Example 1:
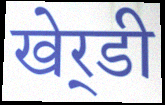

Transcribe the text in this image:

खेर्डी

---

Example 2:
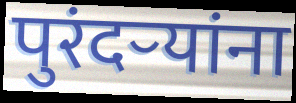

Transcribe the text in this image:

पुरंदऱ्यांना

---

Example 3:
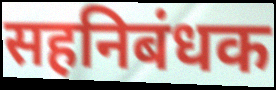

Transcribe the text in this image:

सहनिबंधक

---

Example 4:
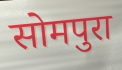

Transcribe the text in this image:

सोमपुरा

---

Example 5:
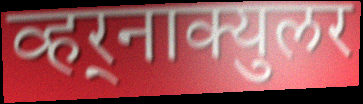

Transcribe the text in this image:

व्हर्नाक्युलर